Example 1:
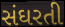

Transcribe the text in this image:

સંઘરતી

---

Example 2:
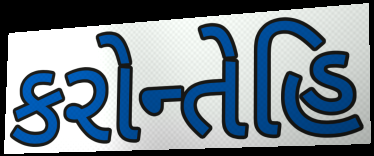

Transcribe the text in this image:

કરોન્તેહિ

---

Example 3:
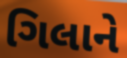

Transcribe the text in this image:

ગિલાને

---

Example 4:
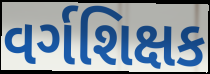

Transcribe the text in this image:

વર્ગશિક્ષક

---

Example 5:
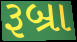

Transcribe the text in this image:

રૂબ્રા